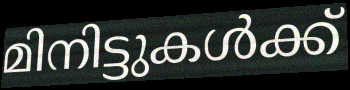
മിനിട്ടുകൾക്ക്